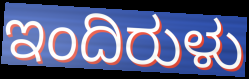
ಇಂದಿರುಳು